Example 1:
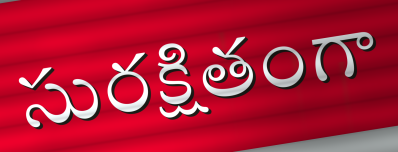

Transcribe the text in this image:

సురక్షితంగా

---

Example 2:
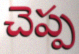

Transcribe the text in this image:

చెప్ప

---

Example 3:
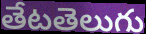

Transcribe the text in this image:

తేటతెలుగు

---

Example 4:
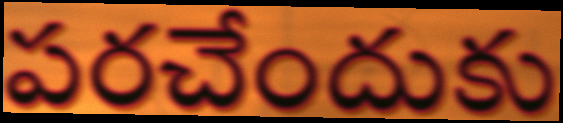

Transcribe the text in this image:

పరచేందుకు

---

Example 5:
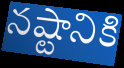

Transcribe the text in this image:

నష్టానికి